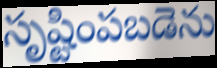
సృష్టింపబడెను